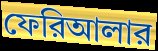
ফেরিআলার